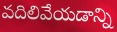
వదిలివేయడాన్ని